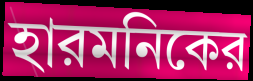
হারমনিকের